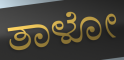
ತಾಳೋ